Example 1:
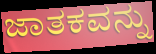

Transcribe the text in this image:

ಜಾತಕವನ್ನು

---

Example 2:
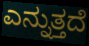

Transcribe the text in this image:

ಎನ್ನುತ್ತದೆ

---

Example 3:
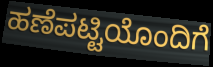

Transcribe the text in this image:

ಹಣೆಪಟ್ಟಿಯೊಂದಿಗೆ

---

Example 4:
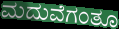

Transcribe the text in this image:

ಮದುವೆಗಂತೂ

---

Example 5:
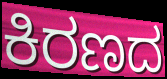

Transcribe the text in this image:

ಕಿರಣದ